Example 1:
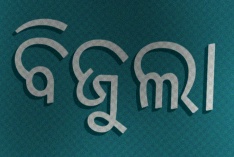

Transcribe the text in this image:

ବିଜୁଲା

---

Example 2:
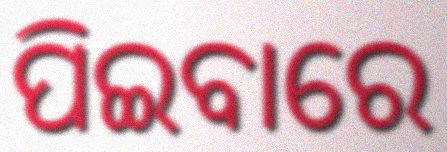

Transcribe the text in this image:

ପିଇବାରେ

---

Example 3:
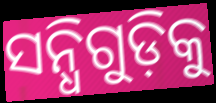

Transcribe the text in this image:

ସନ୍ଧିଗୁଡ଼ିକୁ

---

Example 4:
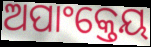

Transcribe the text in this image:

ଅପାଂକ୍ତେୟ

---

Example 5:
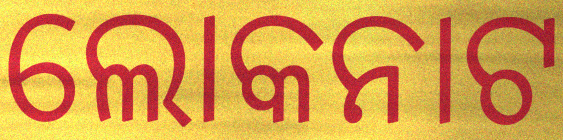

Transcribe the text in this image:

ଲୋକନାଟ